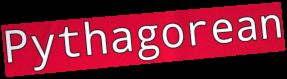
Pythagorean